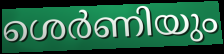
ശെർണിയും